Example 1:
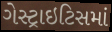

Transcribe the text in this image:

ગેસ્ટ્રાઇટિસમાં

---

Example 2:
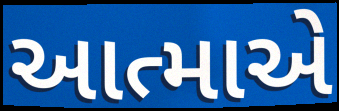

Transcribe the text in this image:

આત્માએ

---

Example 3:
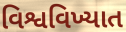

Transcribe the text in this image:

વિશ્વવિખ્યાત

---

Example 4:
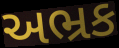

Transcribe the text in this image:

અભ્રક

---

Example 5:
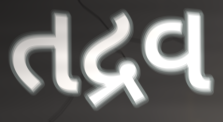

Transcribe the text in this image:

તદ્રવ